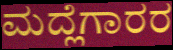
ಮದ್ಲೆಗಾರರ